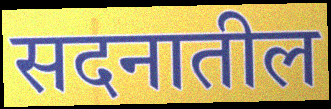
सदनातील